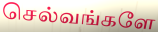
செல்வங்களே